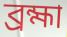
ব্ৰহ্মা